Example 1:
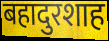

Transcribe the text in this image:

बहादुरशाह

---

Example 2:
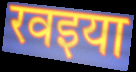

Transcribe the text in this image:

रवइया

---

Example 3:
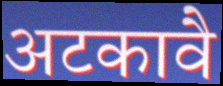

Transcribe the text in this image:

अटकावै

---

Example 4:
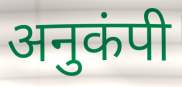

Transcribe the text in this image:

अनुकंपी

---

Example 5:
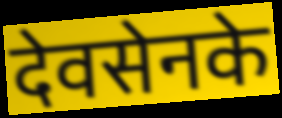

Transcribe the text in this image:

देवसेनके